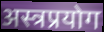
अस्त्रप्रयोग